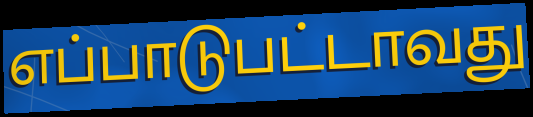
எப்பாடுபட்டாவது